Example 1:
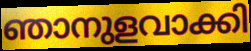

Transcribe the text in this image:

ഞാനുളവാക്കി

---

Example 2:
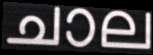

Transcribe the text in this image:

ചാല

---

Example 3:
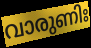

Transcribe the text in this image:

വാരുണിഃ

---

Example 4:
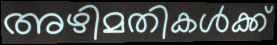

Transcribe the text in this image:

അഴിമതികൾക്ക്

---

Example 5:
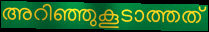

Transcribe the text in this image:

അറിഞ്ഞുകൂടാത്തത്